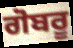
ਗੋਬਰੂ